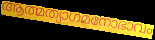
ആത്മത്യാഗമനോഭാവം